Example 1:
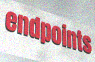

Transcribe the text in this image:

endpoints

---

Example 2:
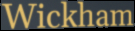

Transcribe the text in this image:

Wickham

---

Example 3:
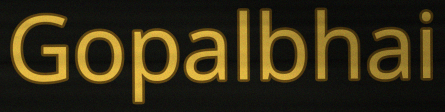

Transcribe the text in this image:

Gopalbhai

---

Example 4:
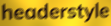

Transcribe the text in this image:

headerstyle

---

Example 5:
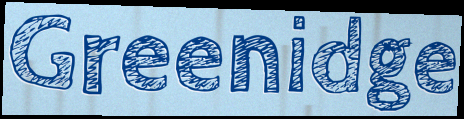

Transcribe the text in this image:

Greenidge